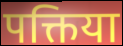
पक्तिया